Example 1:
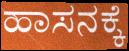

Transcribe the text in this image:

ಹಾಸನಕ್ಕೆ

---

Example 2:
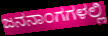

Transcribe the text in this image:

ಜನನಾಂಗಗಳಲ್ಲಿ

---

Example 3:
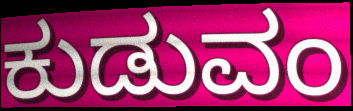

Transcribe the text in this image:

ಕುಡುವಂ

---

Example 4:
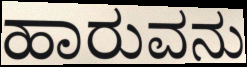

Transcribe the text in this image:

ಹಾರುವನು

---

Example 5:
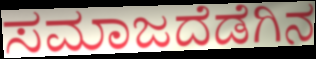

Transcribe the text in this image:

ಸಮಾಜದೆಡೆಗಿನ